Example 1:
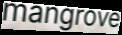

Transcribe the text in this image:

mangrove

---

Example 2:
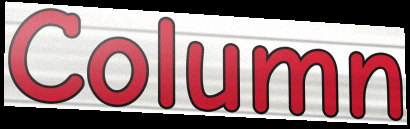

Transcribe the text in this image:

Column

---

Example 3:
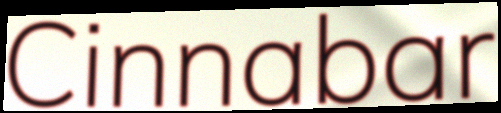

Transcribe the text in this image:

Cinnabar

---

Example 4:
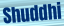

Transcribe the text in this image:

Shuddhi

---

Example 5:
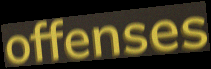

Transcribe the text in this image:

offenses